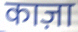
काज़ा